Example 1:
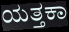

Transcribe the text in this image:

ಯತ್ತಕಾ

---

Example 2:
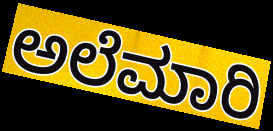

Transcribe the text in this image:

ಅಲೆಮಾರಿ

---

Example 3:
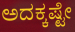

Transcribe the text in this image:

ಅದಕ್ಕಷ್ಟೇ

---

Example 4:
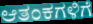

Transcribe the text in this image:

ಆತಂಕಗಳಿಗೆ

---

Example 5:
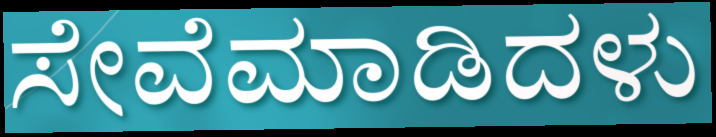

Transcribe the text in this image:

ಸೇವೆಮಾಡಿದಳು